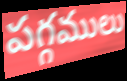
పగ్గములు